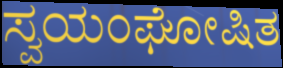
ಸ್ವಯಂಘೋಷಿತ